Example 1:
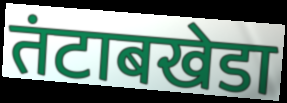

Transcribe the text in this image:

तंटाबखेडा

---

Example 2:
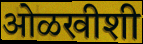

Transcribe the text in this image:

ओळखीशी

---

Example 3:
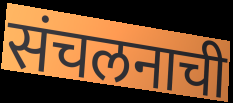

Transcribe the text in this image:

संचलनाची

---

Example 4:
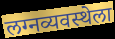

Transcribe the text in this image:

लग्नव्यवस्थेला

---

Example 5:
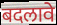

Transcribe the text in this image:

बदलावे